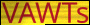
VAWTs